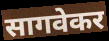
सागवेकर